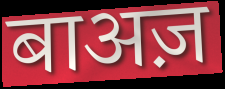
बाअज़